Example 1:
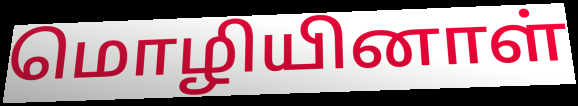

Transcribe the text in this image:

மொழியினாள்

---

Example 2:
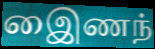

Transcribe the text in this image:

இைணந்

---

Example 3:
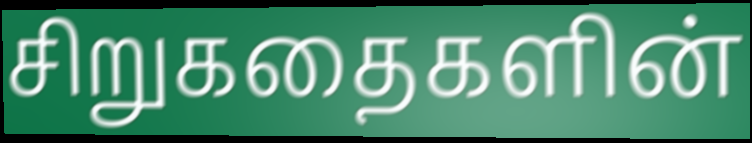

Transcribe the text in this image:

சிறுகதைகளின்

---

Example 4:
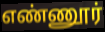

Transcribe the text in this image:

எண்ணூர்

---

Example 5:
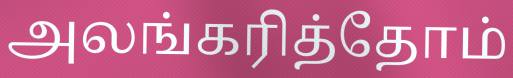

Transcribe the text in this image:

அலங்கரித்தோம்